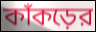
কাঁকড়ের